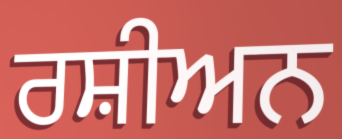
ਰਸ਼ੀਅਨ